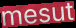
mesut